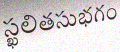
స్ఖలితసుభగం